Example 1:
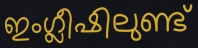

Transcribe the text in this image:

ഇംഗ്ലീഷിലുണ്ട്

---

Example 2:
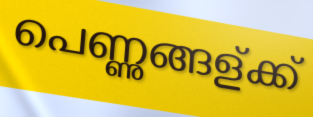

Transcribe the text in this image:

പെണ്ണുങ്ങള്ക്ക്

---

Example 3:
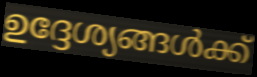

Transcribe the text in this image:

ഉദ്ദേശ്യങ്ങൾക്ക്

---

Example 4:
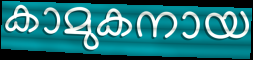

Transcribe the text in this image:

കാമുകനായ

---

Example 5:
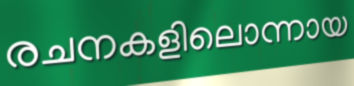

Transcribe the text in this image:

രചനകളിലൊന്നായ